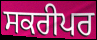
ਸਕਰੀਪਰ